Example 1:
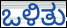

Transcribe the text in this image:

ಒಳಿತು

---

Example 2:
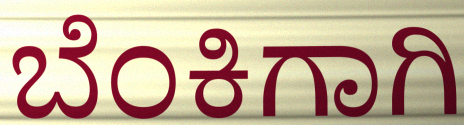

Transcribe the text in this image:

ಬೆಂಕಿಗಾಗಿ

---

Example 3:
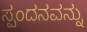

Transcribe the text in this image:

ಸ್ಪಂದನವನ್ನು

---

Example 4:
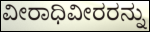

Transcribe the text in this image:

ವೀರಾಧಿವೀರರನ್ನು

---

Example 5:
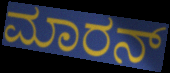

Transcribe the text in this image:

ಮಾರನ್